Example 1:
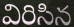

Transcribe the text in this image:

విరిసిన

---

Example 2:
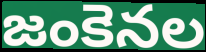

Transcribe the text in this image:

జంకెనల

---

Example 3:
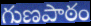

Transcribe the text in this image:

గుణపాఠం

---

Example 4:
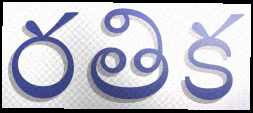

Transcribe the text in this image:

రతిక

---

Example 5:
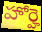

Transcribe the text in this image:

హోర్హె